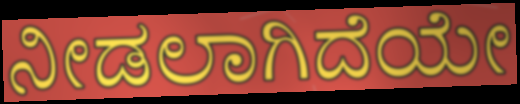
ನೀಡಲಾಗಿದೆಯೇ